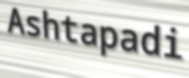
Ashtapadi